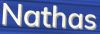
Nathas